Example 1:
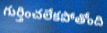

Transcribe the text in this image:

గుర్తించలేకపోతోంది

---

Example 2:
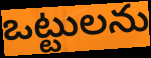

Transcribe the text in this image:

ఒట్టులను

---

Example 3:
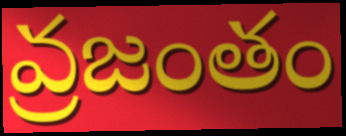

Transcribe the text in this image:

వ్రజంతం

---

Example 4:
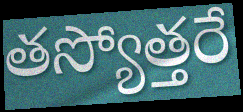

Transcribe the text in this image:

తస్యోత్తరే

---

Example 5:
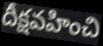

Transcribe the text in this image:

దీక్షవహించి